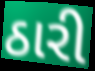
ઠારી